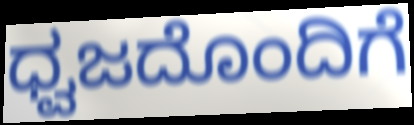
ಧ್ವಜದೊಂದಿಗೆ